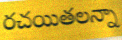
రచయితలన్నా